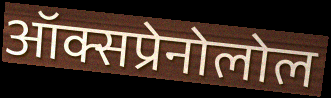
ऑक्सप्रेनोलोल